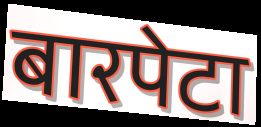
बारपेटा